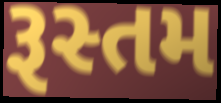
રૂસ્તમ